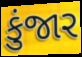
કુંજાર